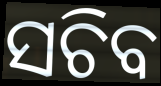
ସଚିବ